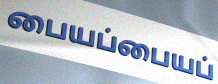
பையப்பையப்